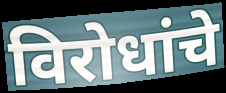
विरोधांचे